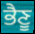
ਭੈਣੂ